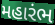
મહારંભ